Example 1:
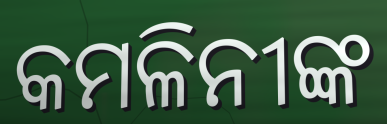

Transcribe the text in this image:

କମଳିନୀଙ୍କ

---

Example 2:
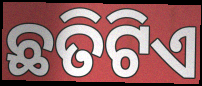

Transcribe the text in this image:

ଛତିଟିଏ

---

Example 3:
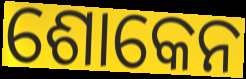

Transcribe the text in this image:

ଶୋକେନ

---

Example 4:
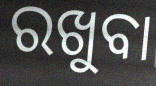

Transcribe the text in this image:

ରଖୁବା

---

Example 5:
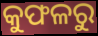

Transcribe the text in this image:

କୁଫଳରୁ